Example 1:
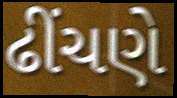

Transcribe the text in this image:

ઢીંચણે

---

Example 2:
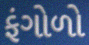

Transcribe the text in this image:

ફંગોળો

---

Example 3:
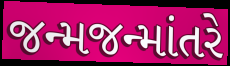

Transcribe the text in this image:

જન્મજન્માંતરે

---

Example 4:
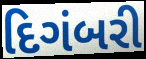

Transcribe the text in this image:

દિગંબરી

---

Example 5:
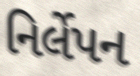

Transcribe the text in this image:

નિર્લેપન